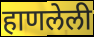
हाणलेली